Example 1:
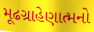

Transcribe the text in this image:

મૂઢગ્રાહેણાત્મનો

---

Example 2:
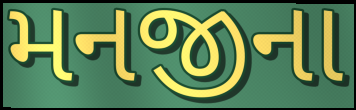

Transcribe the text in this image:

મનજીના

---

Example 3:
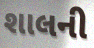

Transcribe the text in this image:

શાલની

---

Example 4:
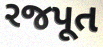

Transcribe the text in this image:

રજપૂત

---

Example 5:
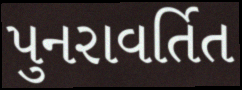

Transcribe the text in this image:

પુનરાવર્તિત